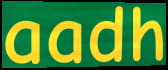
aadh